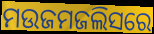
ମଉଜମଜଲିସରେ